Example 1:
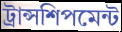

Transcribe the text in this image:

ট্রান্সশিপমেন্ট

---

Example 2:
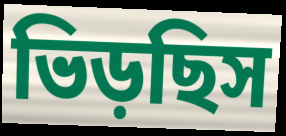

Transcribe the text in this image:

ভিড়ছিস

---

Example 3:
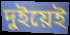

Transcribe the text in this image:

দুইয়েই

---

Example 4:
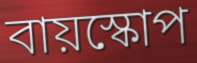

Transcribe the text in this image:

বায়স্কোপ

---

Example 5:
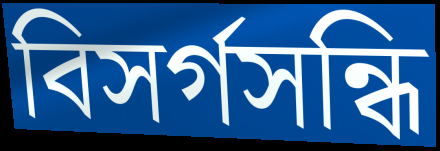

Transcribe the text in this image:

বিসর্গসন্ধি